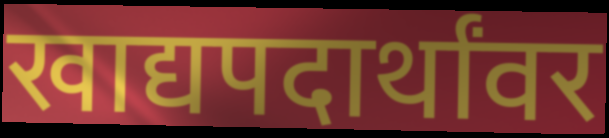
खाद्यपदार्थांवर